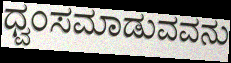
ಧ್ವಂಸಮಾಡುವವನು